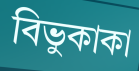
বিভুকাকা